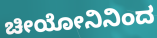
ಚೀಯೋನಿನಿಂದ